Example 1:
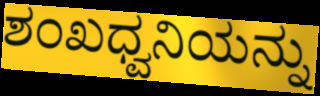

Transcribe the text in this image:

ಶಂಖಧ್ವನಿಯನ್ನು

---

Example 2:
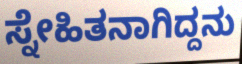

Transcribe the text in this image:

ಸ್ನೇಹಿತನಾಗಿದ್ದನು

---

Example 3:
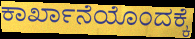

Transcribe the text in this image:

ಕಾರ್ಖಾನೆಯೊಂದಕ್ಕೆ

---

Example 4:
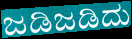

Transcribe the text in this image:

ಜಡಿಜಡಿದು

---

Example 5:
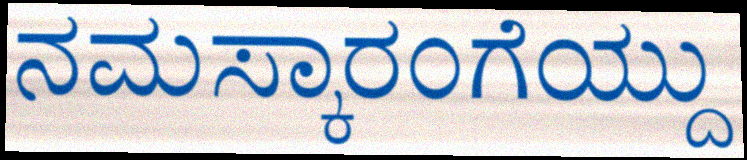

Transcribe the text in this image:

ನಮಸ್ಕಾರಂಗೆಯ್ದು